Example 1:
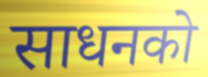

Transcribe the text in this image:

साधनको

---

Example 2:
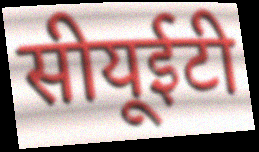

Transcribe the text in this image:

सीयूईटी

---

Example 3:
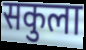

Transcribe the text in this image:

सकुला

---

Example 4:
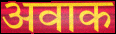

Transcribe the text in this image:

अवाक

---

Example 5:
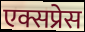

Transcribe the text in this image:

एक्सप्रेस